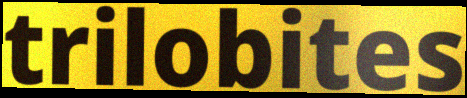
trilobites